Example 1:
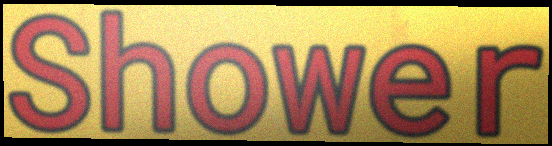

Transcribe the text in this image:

Shower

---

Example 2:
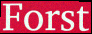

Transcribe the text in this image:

Forst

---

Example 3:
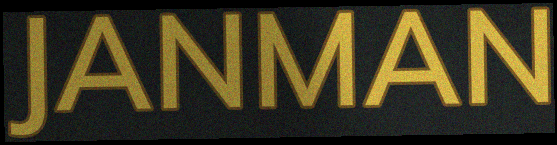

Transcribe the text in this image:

JANMAN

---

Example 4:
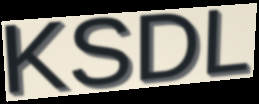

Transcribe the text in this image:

KSDL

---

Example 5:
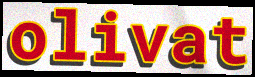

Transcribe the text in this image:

olivat